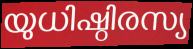
യുധിഷ്ഠിരസ്യ